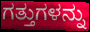
ಗತ್ತುಗಳನ್ನು